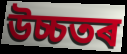
উচ্চতৰ